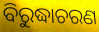
ବିରୁଦ୍ଧାଚରଣ